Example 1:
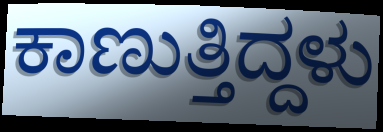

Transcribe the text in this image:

ಕಾಣುತ್ತಿದ್ದಳು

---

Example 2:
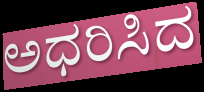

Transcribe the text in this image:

ಅಧರಿಸಿದ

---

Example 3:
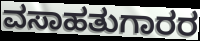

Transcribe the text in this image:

ವಸಾಹತುಗಾರರ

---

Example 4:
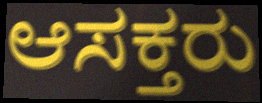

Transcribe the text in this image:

ಆಸಕ್ತರು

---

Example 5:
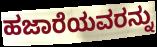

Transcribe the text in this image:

ಹಜಾರೆಯವರನ್ನು